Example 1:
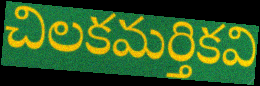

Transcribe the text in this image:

చిలకమర్తికవి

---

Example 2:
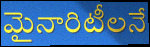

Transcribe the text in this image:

మైనారిటీలనే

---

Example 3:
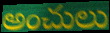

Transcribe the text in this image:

అంచులు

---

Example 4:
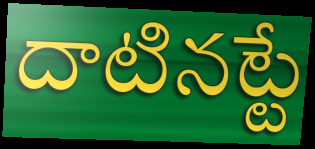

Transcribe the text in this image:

దాటినట్టే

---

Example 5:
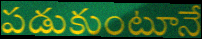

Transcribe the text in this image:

పడుకుంటూనే